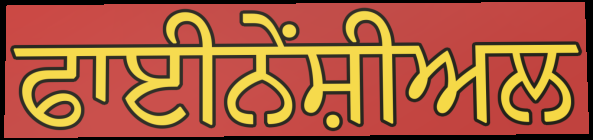
ਫਾਈਨੇਂਸ਼ੀਅਲ